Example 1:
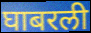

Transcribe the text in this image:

घाबरली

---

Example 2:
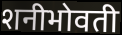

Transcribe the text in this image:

शनीभोवती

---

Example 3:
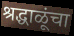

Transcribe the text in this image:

श्रद्धाळूंचा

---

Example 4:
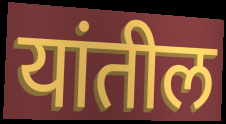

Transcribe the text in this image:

यांतील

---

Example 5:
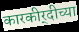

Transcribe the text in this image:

कारकीर्दीच्या